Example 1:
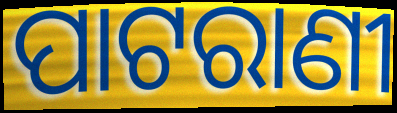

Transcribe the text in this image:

ପାଟରାଣୀ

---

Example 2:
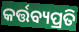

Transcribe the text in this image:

କର୍ତ୍ତବ୍ୟପ୍ରତି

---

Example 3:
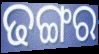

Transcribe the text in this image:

ଢଙ୍ଗର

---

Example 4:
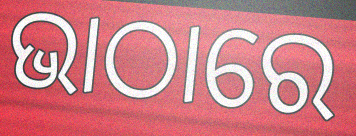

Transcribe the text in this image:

ଭାଠାରେ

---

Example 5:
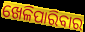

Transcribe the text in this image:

ଖେଳିପାରିବାର